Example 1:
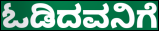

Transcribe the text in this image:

ಓಡಿದವನಿಗೆ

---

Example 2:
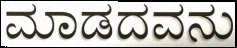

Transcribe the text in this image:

ಮಾಡದವನು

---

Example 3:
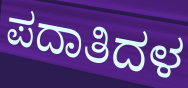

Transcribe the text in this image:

ಪದಾತಿದಳ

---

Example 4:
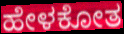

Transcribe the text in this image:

ಹೇಳಕೋತ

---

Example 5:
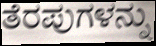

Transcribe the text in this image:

ತೆರಪುಗಳನ್ನು